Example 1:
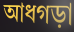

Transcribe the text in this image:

আধগড়া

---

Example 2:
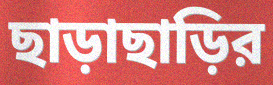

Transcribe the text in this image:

ছাড়াছাড়ির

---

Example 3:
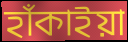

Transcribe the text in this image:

হাঁকাইয়া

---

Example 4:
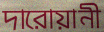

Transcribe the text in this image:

দারোয়ানী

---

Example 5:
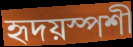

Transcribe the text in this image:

হৃদয়স্পশী